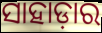
ସାହାଡ଼ାର